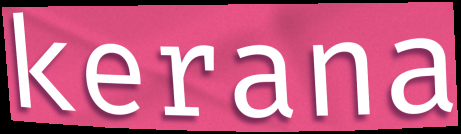
kerana